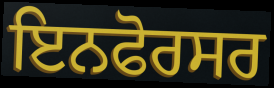
ਇਨਫੋਰਸਰ